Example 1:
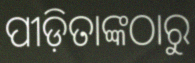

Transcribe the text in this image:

ପୀଡ଼ିତାଙ୍କଠାରୁ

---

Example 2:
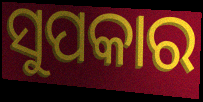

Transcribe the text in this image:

ସୁପକାର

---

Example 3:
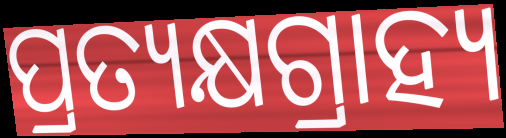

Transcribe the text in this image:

ପ୍ରତ୍ୟକ୍ଷଗ୍ରାହ୍ୟ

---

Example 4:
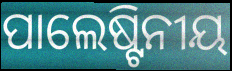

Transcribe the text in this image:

ପାଲେଷ୍ଟିନୀୟ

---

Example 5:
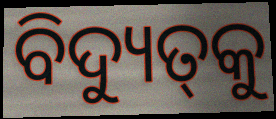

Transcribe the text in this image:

ବିଦ୍ୟୁତ୍‌କୁ